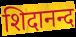
शिदानन्द